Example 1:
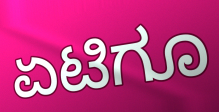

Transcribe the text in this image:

ಏಟಿಗೂ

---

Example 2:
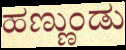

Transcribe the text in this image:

ಹಣ್ಣುಂಡು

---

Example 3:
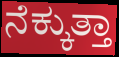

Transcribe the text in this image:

ನೆಕ್ಕುತ್ತಾ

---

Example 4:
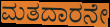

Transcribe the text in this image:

ಮತದಾರನೇ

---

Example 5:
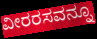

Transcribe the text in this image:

ವೀರರಸವನ್ನೂ